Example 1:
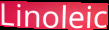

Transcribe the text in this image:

Linoleic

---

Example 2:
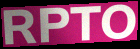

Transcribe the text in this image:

RPTO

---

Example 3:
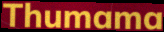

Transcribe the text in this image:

Thumama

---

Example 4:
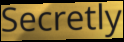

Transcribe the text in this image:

Secretly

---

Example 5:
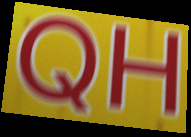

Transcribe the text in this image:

QH